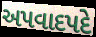
અપવાદપદે